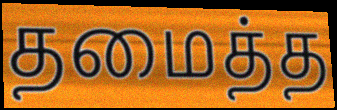
தமைத்த